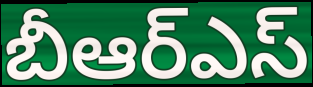
బీఆర్ఎస్